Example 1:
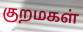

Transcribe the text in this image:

குறமகள்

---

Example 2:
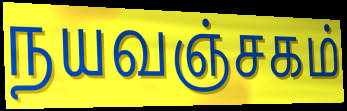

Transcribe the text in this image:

நயவஞ்சகம்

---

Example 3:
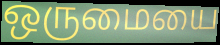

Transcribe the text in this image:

ஒருமையை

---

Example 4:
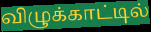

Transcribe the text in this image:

விழுக்காட்டில்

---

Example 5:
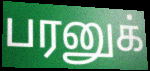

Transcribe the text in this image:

பரனுக்